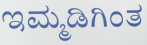
ಇಮ್ಮಡಿಗಿಂತ